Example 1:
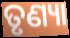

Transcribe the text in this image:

ତୃଣ୍ୟା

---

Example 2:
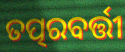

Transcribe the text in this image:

ତତ୍ପରବର୍ତ୍ତୀ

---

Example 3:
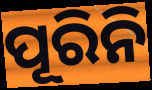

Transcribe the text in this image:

ପୂରିନି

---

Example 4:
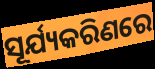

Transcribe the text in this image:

ସୂର୍ଯ୍ୟକରିଣରେ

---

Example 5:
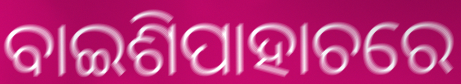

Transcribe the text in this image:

ବାଇଶିପାହାଚରେ